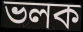
ভলক